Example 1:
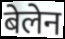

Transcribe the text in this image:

बेलेन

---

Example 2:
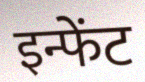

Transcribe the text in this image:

इन्फेंट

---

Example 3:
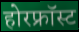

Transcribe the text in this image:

होरफ्रॉस्ट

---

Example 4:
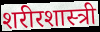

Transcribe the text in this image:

शरीरशास्त्री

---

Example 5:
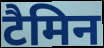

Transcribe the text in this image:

टैमिन